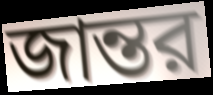
জান্তর